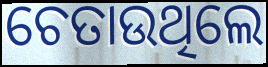
ଚେତାଉଥିଲେ